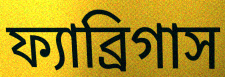
ফ্যাব্রিগাস